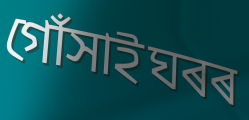
গোঁসাইঘৰৰ